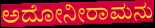
ಅದೋನೀರಾಮನು